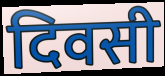
दिवसी